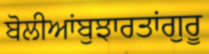
ਬੋਲੀਆਂਬੁਝਾਰਤਾਂਗੁਰੂ